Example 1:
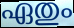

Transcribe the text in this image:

ഏതും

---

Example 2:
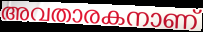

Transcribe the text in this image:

അവതാരകനാണ്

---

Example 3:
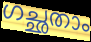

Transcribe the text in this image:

ഗച്ഛതാം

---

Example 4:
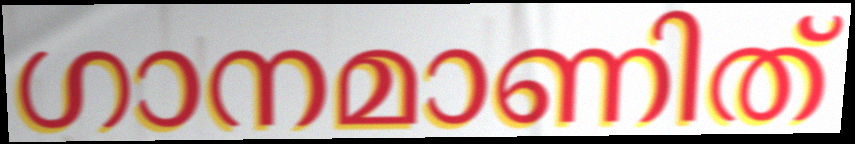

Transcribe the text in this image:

ഗാനമാണിത്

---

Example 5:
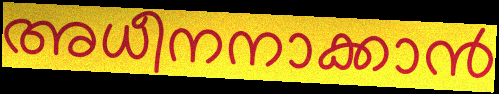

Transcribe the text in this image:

അധീനനാക്കാൻ